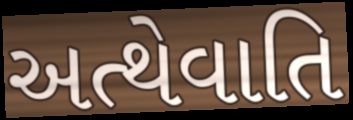
અત્થેવાતિ